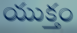
యుక్తం